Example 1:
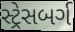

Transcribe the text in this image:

સ્ટ્રેસબર્ગ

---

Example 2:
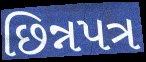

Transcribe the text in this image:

છિન્નપત્ર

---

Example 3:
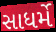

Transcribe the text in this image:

સાધર્મે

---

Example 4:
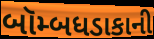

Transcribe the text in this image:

બૉમ્બધડાકાની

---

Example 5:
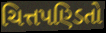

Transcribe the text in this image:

ચિત્તપણ્ડિતો